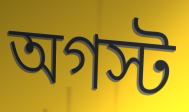
অগস্ট